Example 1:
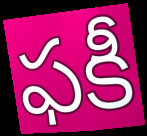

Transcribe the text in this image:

ఫకీ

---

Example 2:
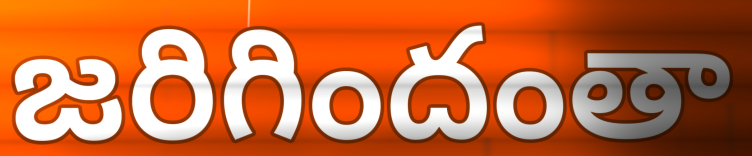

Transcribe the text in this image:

జరిగిందంతా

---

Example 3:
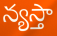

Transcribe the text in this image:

న్యస్తా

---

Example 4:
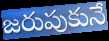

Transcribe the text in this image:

జరుపుకునే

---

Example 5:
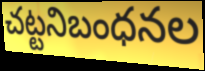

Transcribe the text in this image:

చట్టనిబంధనల